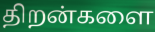
திறன்களை